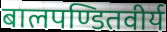
बालपण्डितवीर्य